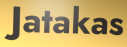
Jatakas